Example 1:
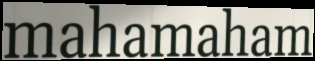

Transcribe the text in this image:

mahamaham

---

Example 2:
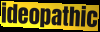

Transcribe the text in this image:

ideopathic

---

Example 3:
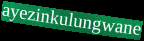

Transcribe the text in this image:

ayezinkulungwane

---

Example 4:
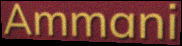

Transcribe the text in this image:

Ammani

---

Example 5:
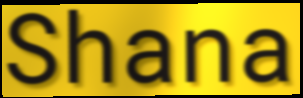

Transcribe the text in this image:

Shana